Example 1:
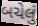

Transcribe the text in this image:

બચેલું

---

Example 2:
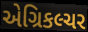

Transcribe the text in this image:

એગ્રિકલ્ચર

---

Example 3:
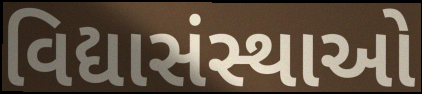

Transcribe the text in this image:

વિદ્યાસંસ્થાઓ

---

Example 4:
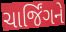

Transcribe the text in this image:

ચાર્જિંગને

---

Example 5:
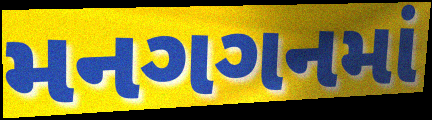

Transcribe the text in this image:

મનગગનમાં